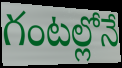
గంటల్లోనే